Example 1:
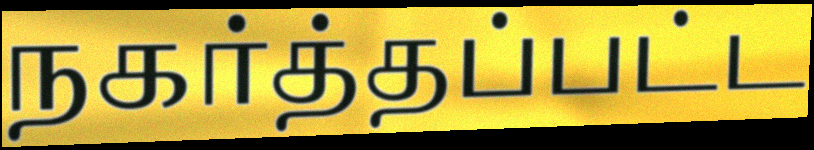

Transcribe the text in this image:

நகர்த்தப்பட்ட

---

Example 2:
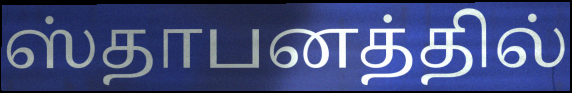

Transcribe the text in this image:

ஸ்தாபனத்தில்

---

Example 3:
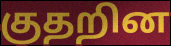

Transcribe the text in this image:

குதறின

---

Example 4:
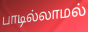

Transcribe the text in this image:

பாடில்லாமல்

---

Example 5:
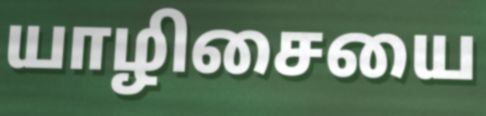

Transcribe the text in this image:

யாழிசையை